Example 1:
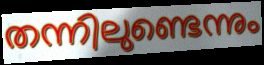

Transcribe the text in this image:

തന്നിലുണ്ടെന്നും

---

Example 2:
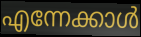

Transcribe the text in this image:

എന്നേക്കാൾ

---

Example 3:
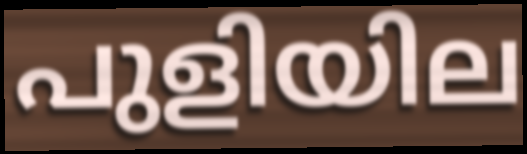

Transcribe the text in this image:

പുളിയില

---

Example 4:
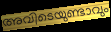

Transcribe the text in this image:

അവിടെയുണ്ടാവും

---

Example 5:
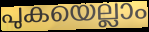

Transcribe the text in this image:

പുകയെല്ലാം